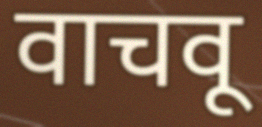
वाचवू